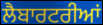
ਲੈਬਾਰਟਰੀਆਂ